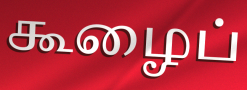
கூழைப்